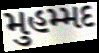
મુહમ્મદ